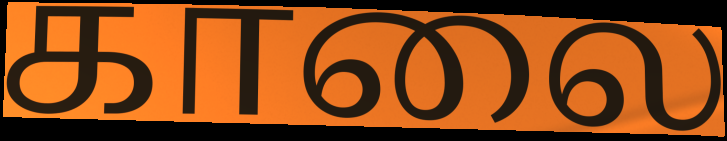
காலை